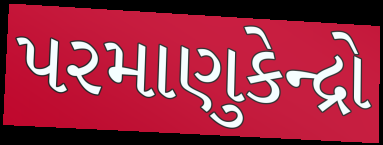
પરમાણુકેન્દ્રો